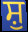
ਸ਼ੁ